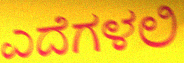
ಎದೆಗಳಲಿ